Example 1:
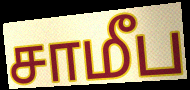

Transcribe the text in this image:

சாமீப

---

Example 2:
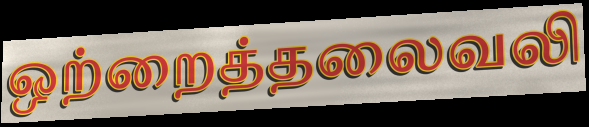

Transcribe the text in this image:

ஒற்றைத்தலைவலி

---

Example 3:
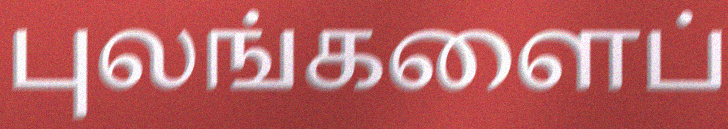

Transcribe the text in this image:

புலங்களைப்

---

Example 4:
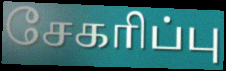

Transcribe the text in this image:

சேகரிப்பு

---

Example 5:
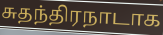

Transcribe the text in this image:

சுதந்திரநாடாக